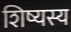
शिष्यस्य